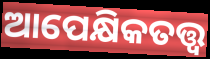
ଆପେକ୍ଷିକତତ୍ତ୍ୱ